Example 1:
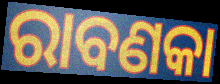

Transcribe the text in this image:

ରାବଣକା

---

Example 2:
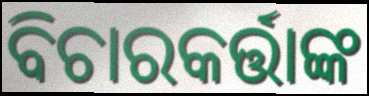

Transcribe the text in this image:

ବିଚାରକର୍ତ୍ତାଙ୍କ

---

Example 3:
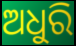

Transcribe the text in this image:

ଅଧୁରି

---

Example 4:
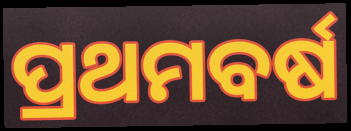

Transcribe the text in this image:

ପ୍ରଥମବର୍ଷ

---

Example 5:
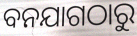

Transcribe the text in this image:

ବନଯାଗଠାରୁ